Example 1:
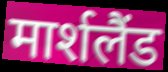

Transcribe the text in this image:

मार्शलैंड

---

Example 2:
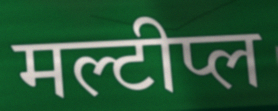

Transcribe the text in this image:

मल्टीप्ल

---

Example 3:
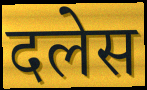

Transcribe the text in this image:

दलेस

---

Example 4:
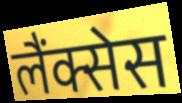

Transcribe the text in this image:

लैंक्सेस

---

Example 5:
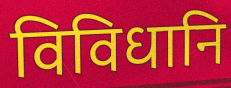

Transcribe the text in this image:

विविधानि